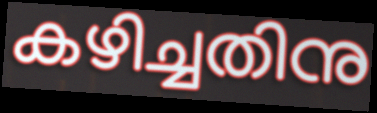
കഴിച്ചതിനു